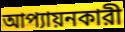
আপ্যায়নকারী